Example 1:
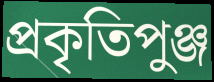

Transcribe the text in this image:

প্রকৃতিপুঞ্জ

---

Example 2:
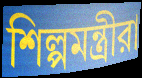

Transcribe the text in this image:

শিল্পমন্ত্রীরা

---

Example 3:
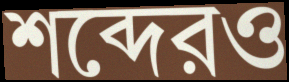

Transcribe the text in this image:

শব্দেরও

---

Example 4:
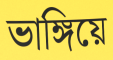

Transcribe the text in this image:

ভাঙ্গিয়ে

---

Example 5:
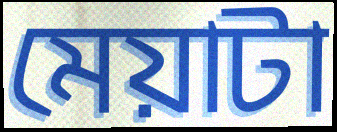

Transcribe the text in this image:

মেয়াটা